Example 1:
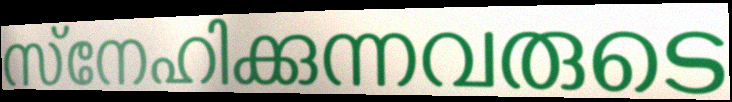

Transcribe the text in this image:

സ്‌നേഹിക്കുന്നവരുടെ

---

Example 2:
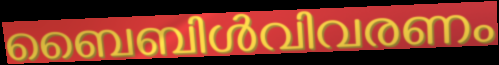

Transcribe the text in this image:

ബൈബിൾവിവരണം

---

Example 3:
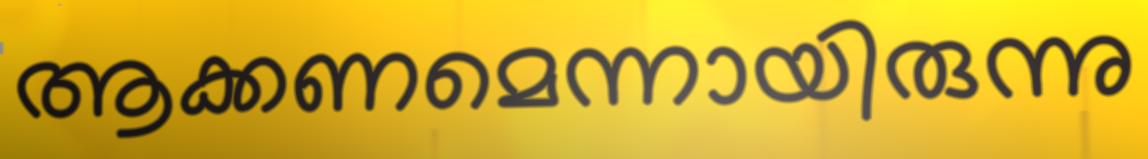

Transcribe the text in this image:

ആക്കണമെന്നായിരുന്നു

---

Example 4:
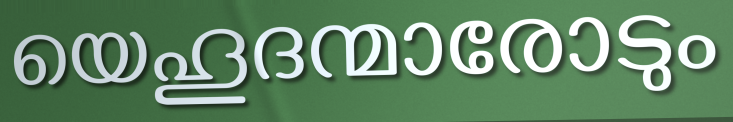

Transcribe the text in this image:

യെഹൂദന്മാരോടും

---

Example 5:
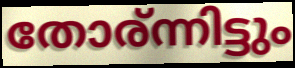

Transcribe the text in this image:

തോര്ന്നിട്ടും